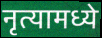
नृत्यामध्ये